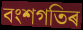
বংশগতিৰ